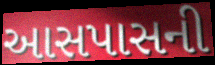
આસપાસની